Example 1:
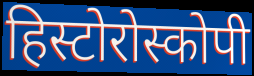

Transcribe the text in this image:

हिस्टोरोस्कोपी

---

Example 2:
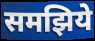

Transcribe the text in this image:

समझिये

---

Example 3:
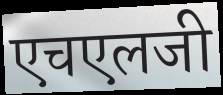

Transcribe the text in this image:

एचएलजी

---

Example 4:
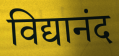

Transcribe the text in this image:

विद्यानंद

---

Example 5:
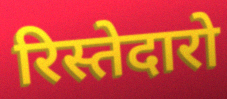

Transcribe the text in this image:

रिस्तेदारो